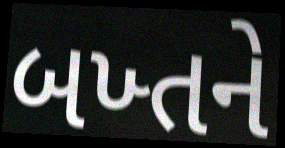
બખ્તને